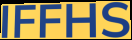
IFFHS